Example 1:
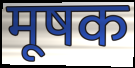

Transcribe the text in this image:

मूषक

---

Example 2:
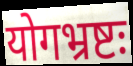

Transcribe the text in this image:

योगभ्रष्टः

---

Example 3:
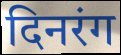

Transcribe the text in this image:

दिनरंग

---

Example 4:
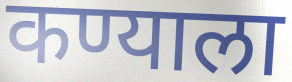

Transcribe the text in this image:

कण्याला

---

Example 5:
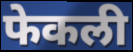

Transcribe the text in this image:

फेकली